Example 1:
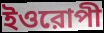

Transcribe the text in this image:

ইওরোপী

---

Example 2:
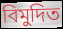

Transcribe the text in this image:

বিমুদিত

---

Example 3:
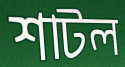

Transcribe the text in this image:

শাটল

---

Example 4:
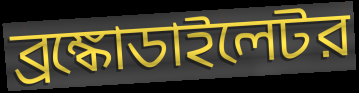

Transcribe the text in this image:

ব্রঙ্কোডাইলেটর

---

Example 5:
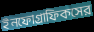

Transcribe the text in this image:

ইনফোগ্রাফিকসের